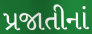
પ્રજાતીનાં